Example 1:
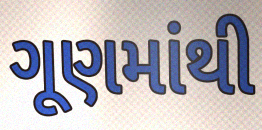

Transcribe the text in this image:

ગૂણમાંથી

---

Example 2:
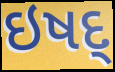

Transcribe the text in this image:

ઇષદ્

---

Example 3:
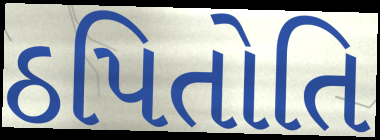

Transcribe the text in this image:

ઠપિતોતિ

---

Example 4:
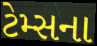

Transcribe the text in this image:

ટેમ્સના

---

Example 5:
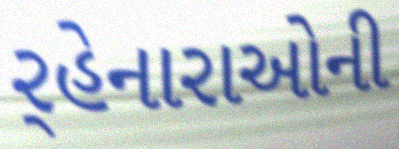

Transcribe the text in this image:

ર્‌હેનારાઓની